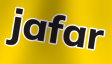
jafar